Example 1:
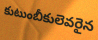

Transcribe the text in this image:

కుటుంబీకులెవరైన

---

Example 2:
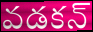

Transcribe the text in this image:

వడకన్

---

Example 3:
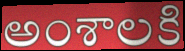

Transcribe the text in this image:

అంశాలకి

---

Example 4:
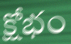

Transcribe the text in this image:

క్షోభం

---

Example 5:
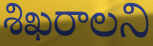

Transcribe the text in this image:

శిఖరాలని